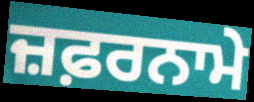
ਜ਼ਫ਼ਰਨਾਮੇ